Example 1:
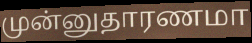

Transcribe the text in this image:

முன்னுதாரணமா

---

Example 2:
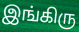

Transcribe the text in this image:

இங்கிரு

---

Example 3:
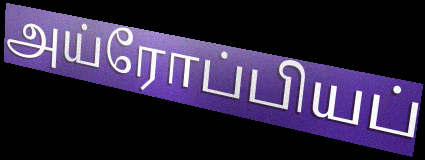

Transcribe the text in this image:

அய்ரோப்பியப்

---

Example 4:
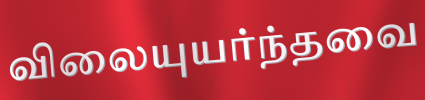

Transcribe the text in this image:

விலையுயர்ந்தவை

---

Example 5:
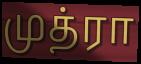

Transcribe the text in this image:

முத்ரா